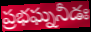
ప్రభఘ్ననీడః